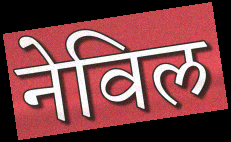
नेविल